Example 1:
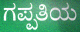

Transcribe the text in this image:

ಗಪ್ಪತಿಯ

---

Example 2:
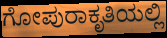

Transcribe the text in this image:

ಗೋಪುರಾಕೃತಿಯಲ್ಲಿ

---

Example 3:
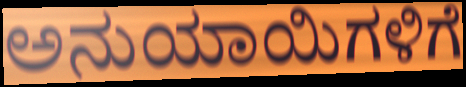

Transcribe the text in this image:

ಅನುಯಾಯಿಗಳಿಗೆ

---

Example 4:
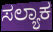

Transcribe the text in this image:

ಸಲ್ಯಾಕ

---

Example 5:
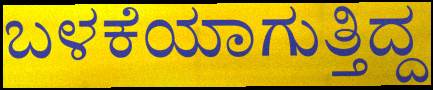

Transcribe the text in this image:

ಬಳಕೆಯಾಗುತ್ತಿದ್ದ